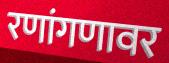
रणांगणावर